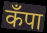
कँपा